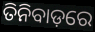
ତିନିବାଡ଼ରେ